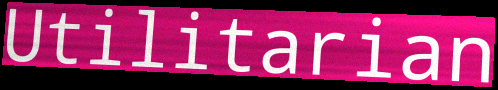
Utilitarian